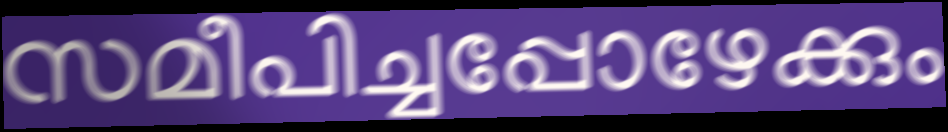
സമീപിച്ചപ്പോഴേക്കും